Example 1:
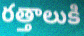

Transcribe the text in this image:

రత్తాలుకి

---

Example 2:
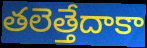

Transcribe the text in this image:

తలెత్తేదాకా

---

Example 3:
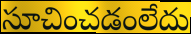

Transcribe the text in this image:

సూచించడంలేదు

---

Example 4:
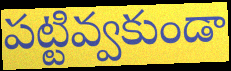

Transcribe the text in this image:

పట్టివ్వకుండా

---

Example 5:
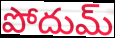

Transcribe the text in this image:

పోదుమ్